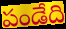
పండేది